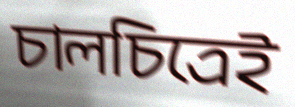
চালচিত্রেই